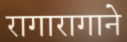
रागारागाने